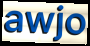
awjo